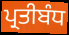
ਪ੍ਰਤੀਬੰਧ